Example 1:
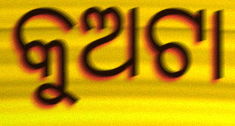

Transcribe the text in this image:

କୁଅଟା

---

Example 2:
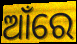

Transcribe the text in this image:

ଆଁରେ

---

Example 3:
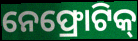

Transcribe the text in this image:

ନେଫ୍ରୋଟିକ୍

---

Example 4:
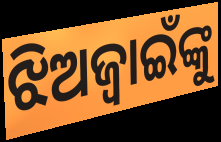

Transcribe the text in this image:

ଝିଅଜ୍ୱାଇଁଙ୍କୁ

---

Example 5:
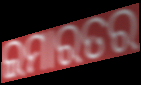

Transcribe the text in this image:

ଇମାରତର